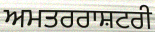
ਅਮਤਰਰਾਸ਼ਟਰੀ